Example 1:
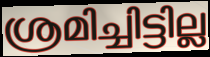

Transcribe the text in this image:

ശ്രമിച്ചിട്ടില്ല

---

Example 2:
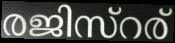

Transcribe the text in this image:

രജിസ്റര്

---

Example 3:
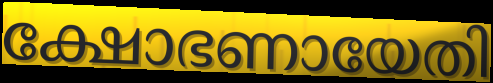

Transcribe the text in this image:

ക്ഷോഭണായേതി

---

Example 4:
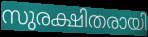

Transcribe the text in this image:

സുരക്ഷിതരായി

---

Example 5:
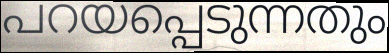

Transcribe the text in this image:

പറയപ്പെടുന്നതും